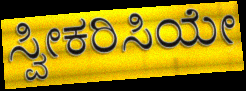
ಸ್ವೀಕರಿಸಿಯೇ